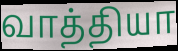
வாத்தியா